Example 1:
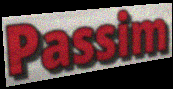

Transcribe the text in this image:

Passim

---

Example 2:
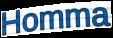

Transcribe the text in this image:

Homma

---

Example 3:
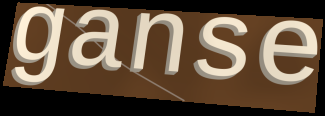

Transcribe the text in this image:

ganse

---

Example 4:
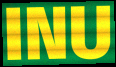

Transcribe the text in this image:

INU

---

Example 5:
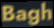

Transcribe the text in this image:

Bagh